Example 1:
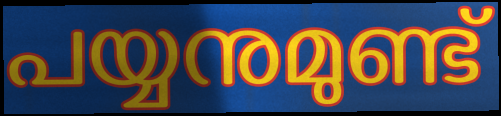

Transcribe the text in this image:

പയ്യനുമുണ്ട്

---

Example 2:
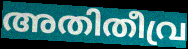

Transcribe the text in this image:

അതിതീവ്ര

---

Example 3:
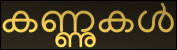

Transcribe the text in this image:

കണ്ണുകൾ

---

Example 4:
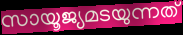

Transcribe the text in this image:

സായൂജ്യമടയുന്നത്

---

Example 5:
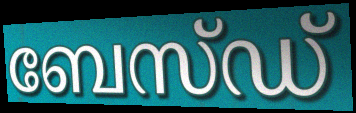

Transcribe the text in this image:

ബേസ്ഡ്